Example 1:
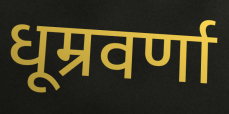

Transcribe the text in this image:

धूम्रवर्णा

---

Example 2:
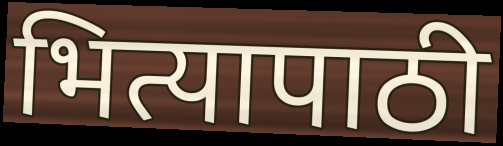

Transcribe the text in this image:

भित्यापाठी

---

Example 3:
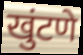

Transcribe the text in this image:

खुंटणे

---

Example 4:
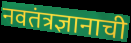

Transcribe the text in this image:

नवतंत्रज्ञानाची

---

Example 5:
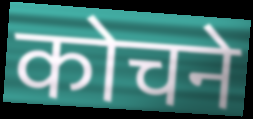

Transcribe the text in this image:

कोचने